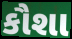
કૌશા